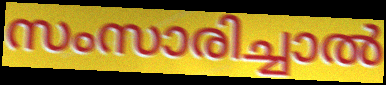
സംസാരിച്ചാൽ